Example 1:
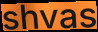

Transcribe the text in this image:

shvas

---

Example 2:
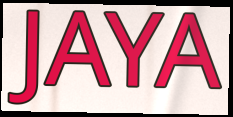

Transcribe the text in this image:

JAYA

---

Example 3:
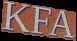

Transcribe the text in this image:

KFA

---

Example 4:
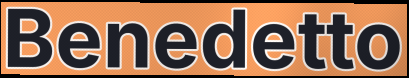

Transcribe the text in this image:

Benedetto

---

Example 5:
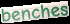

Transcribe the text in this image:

benches